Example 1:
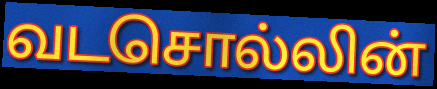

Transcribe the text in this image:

வடசொல்லின்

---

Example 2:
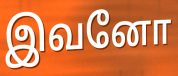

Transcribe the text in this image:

இவனோ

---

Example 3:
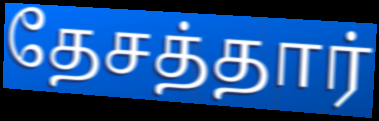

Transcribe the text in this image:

தேசத்தார்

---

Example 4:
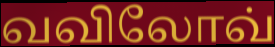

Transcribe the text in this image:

வவிலோவ்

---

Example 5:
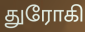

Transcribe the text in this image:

துரோகி